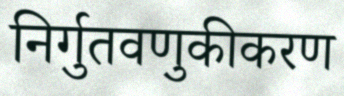
निर्गुतवणुकीकरण